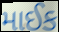
માઈક